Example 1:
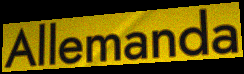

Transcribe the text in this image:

Allemanda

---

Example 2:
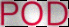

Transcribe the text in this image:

POD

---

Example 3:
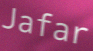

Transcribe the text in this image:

Jafar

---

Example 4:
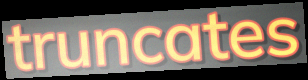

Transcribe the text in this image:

truncates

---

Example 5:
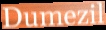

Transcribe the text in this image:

Dumezil